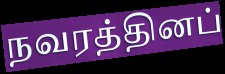
நவரத்தினப்